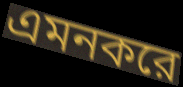
এমনকরে